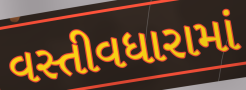
વસ્તીવધારામાં